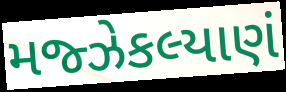
મજ્ઝેકલ્યાણં